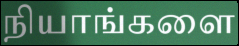
நியாங்களை